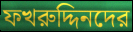
ফখরুদ্দিনদের